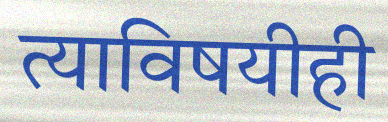
त्याविषयीही